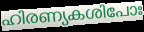
ഹിരണ്യകശിപോഃ